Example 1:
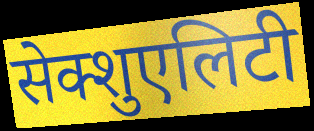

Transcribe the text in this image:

सेक्शुएलिटी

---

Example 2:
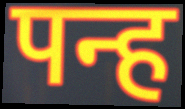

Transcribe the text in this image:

पन्ह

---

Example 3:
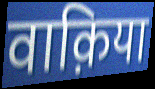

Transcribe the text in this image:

वाक़िया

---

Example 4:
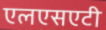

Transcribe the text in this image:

एलएसएटी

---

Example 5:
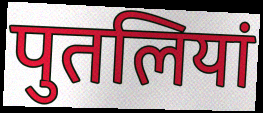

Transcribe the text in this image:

पुतलियां